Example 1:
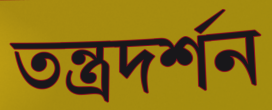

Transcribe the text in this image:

তন্ত্রদর্শন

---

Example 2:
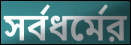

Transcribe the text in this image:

সর্বধর্মের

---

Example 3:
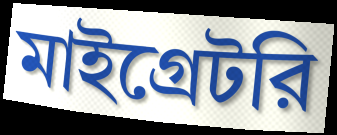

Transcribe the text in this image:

মাইগ্রেটরি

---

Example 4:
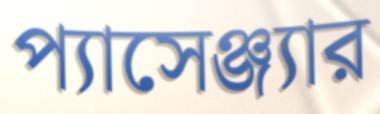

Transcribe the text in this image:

প্যাসেঞ্জ্যার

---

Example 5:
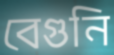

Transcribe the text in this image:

বেগুনি